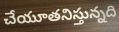
చేయూతనిస్తున్నది